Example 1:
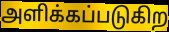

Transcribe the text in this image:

அளிக்கப்படுகிற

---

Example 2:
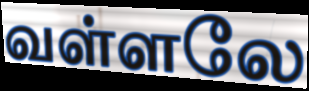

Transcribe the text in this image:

வள்ளலே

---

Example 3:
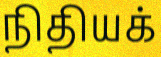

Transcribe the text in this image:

நிதியக்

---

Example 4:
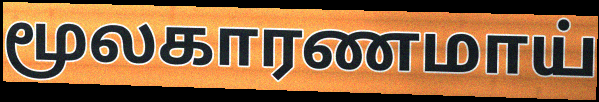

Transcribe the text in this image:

மூலகாரணமாய்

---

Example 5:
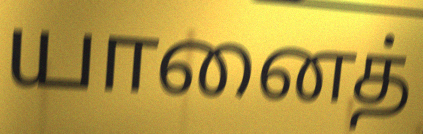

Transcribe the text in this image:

யானைத்